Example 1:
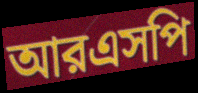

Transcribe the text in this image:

আরএসপি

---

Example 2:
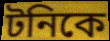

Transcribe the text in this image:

টনিকে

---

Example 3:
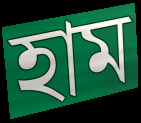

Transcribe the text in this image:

হাম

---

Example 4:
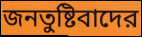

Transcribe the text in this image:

জনতুষ্টিবাদের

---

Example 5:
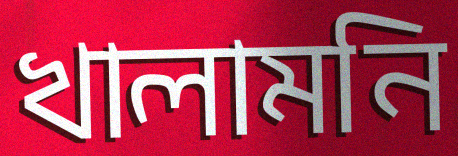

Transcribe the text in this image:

খালামনি